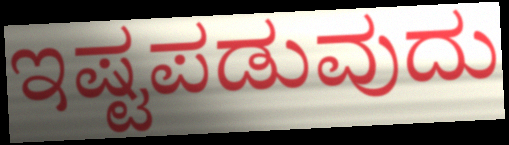
ಇಷ್ಟಪಡುವುದು